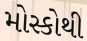
મોસ્કોથી